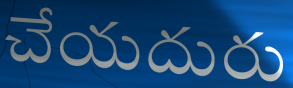
చేయదురు